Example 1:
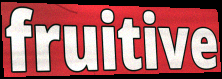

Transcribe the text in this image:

fruitive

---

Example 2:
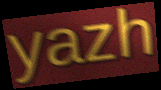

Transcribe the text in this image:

yazh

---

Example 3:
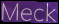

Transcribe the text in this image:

Meck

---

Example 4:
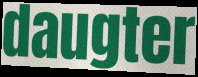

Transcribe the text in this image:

daugter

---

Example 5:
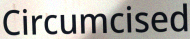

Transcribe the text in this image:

Circumcised